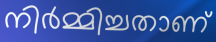
നിർമ്മിച്ചതാണ്